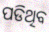
ପଡିଥିବ